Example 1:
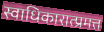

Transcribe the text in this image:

स्वाधिकारात्प्रमत्त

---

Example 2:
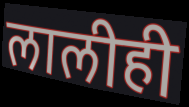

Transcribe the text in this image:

लालीही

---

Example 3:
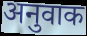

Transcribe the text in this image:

अनुवाक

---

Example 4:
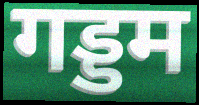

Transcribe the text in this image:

गड्डम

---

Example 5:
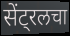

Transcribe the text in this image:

सेंट्रलचा